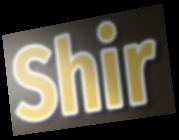
Shir